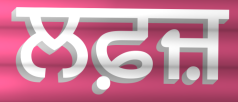
ਲਫ਼ਜ਼